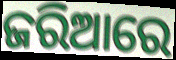
ଜରିଆରେ